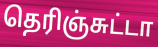
தெரிஞ்சுட்டா